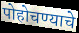
पोहोचण्याचे